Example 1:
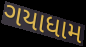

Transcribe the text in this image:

ગયાધામ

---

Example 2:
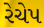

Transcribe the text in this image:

રેચેપ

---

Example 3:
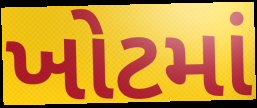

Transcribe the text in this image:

ખોટમાં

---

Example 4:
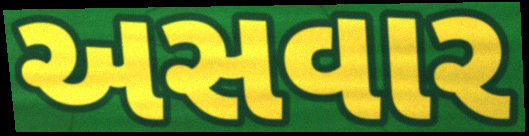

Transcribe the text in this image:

અસવાર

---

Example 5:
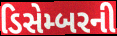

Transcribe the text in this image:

ડિસેમ્બરની